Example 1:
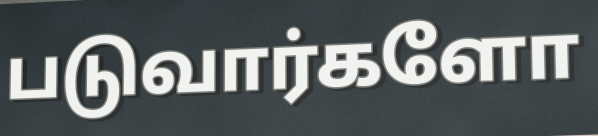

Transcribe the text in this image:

படுவார்களோ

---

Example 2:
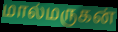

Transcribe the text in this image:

மால்மருகன்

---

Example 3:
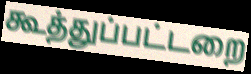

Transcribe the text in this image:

கூத்துப்பட்டறை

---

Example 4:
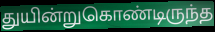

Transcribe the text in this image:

துயின்றுகொண்டிருந்த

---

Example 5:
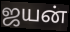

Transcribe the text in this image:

ஜயன்